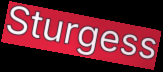
Sturgess